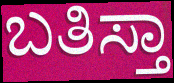
ಬತಿಸ್ತಾ